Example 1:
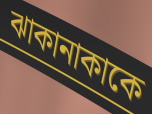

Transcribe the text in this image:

ঝাকানাকাকে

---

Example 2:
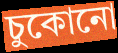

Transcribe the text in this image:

চুকোনো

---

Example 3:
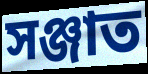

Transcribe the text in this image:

সঞ্জাত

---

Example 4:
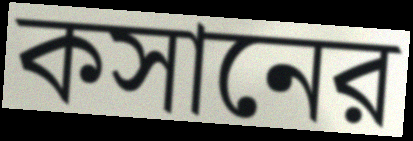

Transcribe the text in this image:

কসানের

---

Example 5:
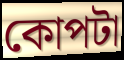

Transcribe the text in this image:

কোপটা